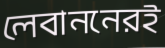
লেবাননেরই